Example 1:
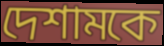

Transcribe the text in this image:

দেশামকে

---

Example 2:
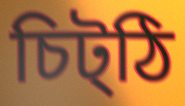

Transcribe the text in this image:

চিট্ঠি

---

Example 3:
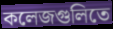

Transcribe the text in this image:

কলেজগুলিতে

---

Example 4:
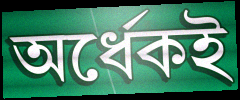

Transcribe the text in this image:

অর্ধেকই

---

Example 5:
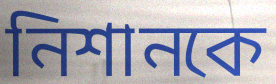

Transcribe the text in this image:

নিশানকে